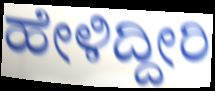
ಹೇಳಿದ್ದೀರಿ